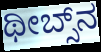
ಥೀಬ್ಸ್‌ನ